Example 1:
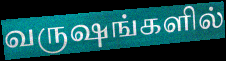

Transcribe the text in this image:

வருஷங்களில்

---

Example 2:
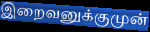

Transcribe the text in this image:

இறைவனுக்குமுன்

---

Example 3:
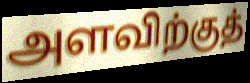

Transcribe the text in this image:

அளவிற்குத்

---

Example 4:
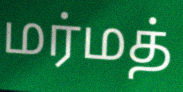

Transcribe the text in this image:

மர்மத்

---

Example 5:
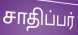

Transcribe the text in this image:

சாதிப்பர்